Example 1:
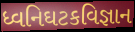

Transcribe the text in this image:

ધ્વનિઘટકવિજ્ઞાન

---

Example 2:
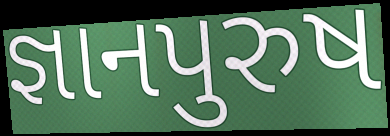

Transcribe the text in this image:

જ્ઞાનપુરુષ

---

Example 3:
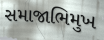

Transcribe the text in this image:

સમાજાભિમુખ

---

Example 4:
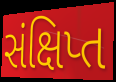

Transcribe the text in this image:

સંક્ષિપ્ત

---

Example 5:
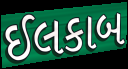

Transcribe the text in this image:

ઈલકાબ